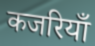
कजरियाँ